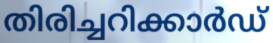
തിരിച്ചറിക്കാർഡ്